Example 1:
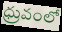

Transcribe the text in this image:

ధ్రువంలో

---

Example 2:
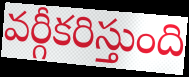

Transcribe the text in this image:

వర్గీకరిస్తుంది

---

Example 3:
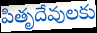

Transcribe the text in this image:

పితృదేవులకు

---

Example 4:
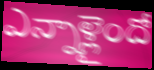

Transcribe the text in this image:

ఎన్నాళ్లైందో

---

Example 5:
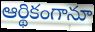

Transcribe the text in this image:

ఆర్థికంగానూ